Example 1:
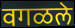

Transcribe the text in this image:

वगळले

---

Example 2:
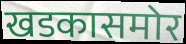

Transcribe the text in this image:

खडकासमोर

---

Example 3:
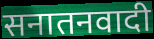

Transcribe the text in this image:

सनातनवादी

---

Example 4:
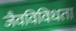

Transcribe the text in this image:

जैवविविधता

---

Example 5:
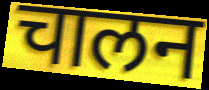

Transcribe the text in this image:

चालन